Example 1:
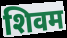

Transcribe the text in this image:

शिवम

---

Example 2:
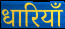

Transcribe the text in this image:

धारियाँ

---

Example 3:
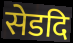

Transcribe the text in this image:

सेडदि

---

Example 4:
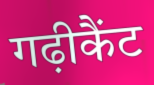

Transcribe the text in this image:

गढ़ीकैंट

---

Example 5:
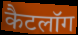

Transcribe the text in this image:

कैटलॉग